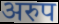
अरुप